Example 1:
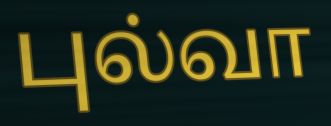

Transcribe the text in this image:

புல்வா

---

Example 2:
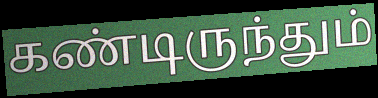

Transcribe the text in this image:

கண்டிருந்தும்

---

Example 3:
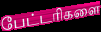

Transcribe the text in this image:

பேட்டரிகளை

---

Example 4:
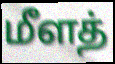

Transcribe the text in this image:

மீளத்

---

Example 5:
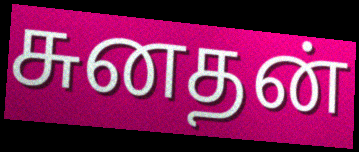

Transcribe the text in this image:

சுனதன்